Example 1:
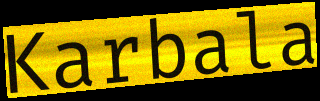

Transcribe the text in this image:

Karbala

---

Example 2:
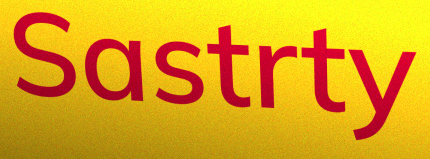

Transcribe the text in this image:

Sastrty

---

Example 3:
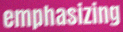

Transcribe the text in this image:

emphasizing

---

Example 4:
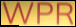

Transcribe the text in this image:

WPR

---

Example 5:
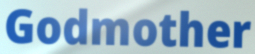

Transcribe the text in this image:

Godmother